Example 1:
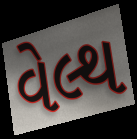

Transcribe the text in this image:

વેલ્થ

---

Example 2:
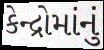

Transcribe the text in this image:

કેન્દ્રોમાંનું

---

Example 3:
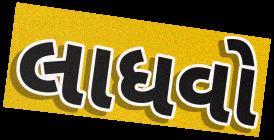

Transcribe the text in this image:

લાધવો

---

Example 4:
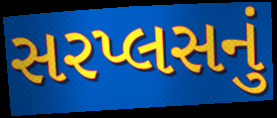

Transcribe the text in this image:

સરપ્લસનું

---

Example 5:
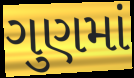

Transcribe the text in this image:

ગુણમાં